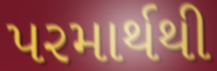
પરમાર્થથી